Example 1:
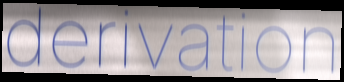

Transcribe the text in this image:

derivation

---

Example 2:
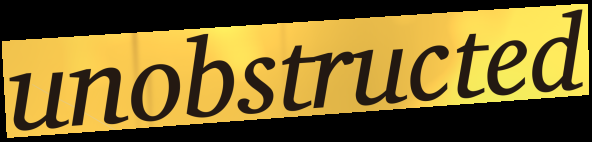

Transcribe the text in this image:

unobstructed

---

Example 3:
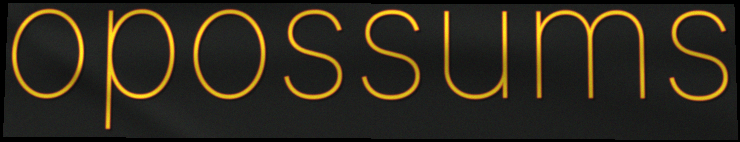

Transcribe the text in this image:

opossums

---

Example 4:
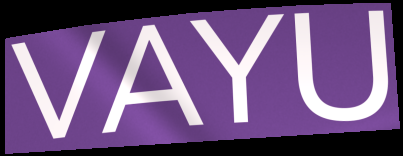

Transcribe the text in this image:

VAYU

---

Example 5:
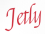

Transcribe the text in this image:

Jetly